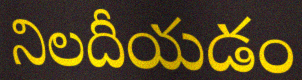
నిలదీయడం